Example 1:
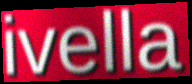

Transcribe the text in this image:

ivella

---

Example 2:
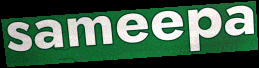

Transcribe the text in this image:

sameepa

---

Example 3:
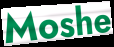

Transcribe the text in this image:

Moshe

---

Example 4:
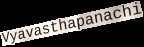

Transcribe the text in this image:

Vyavasthapanachi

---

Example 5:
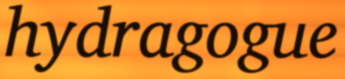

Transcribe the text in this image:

hydragogue